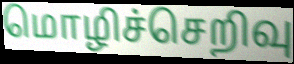
மொழிச்செறிவு